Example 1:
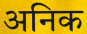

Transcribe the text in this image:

अनिक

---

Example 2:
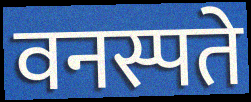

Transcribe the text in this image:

वनस्पते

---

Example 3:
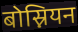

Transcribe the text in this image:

बोस्नियन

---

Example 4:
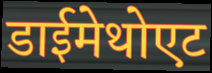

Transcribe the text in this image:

डाईमेथोएट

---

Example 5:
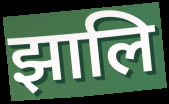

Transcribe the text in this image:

झालि